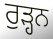
ਰੁੜ੍ਹਨ